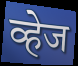
व्हेज